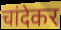
चांदेकर